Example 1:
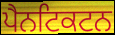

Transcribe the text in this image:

ਪੈਨਟਿਕਟਨ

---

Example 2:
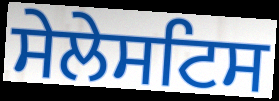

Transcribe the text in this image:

ਸੇਲੇਸਟਿਸ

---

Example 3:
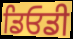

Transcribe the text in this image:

ਡਿਓਡੀ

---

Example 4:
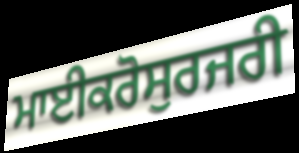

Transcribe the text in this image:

ਮਾਈਕਰੋਸੁਰਜਰੀ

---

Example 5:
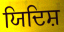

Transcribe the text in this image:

ਯਿਦਿਸ਼